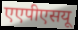
एएपीएसयू